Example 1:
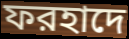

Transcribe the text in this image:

ফরহাদে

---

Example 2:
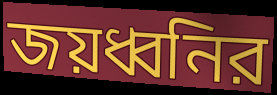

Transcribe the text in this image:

জয়ধ্বনির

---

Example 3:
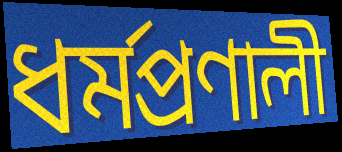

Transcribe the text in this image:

ধর্মপ্রণালী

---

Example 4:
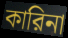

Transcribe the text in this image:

কারিনা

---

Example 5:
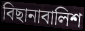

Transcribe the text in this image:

বিছানাবালিশ